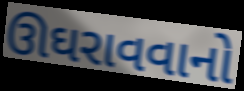
ઊઘરાવવાનો